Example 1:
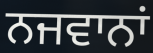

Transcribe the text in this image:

ਨਜਵਾਨਾਂ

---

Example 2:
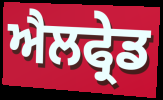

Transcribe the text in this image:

ਐਲਫ੍ਰੇਡ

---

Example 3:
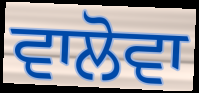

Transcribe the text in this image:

ਵਾਲੋਵਾ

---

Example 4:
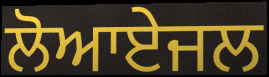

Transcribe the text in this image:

ਲੋਆਏਜਲ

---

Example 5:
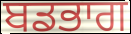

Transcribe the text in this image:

ਬਡਭਾਗ